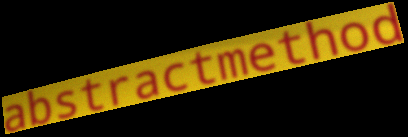
abstractmethod